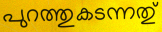
പുറത്തുകടന്നതു്